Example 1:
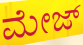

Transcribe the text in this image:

ಮೇಜ್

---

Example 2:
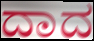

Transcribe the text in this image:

ದಾದ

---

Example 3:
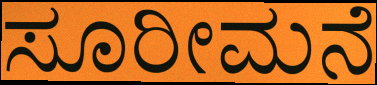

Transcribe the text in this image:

ಸೂರೀಮನೆ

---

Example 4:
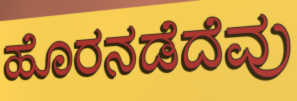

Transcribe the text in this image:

ಹೊರನಡೆದೆವು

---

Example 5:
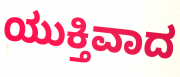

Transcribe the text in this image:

ಯುಕ್ತಿವಾದ